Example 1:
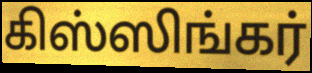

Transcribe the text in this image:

கிஸ்ஸிங்கர்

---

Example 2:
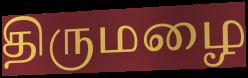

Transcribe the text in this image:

திருமழை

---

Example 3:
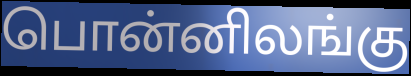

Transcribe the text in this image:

பொன்னிலங்கு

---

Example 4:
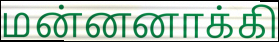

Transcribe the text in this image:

மன்னனாக்கி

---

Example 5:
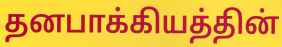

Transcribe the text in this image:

தனபாக்கியத்தின்